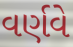
વર્ણવે